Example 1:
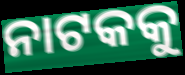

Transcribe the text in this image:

ନାଟକକୁ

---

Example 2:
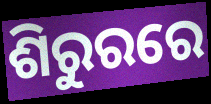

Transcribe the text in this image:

ଶିରୁରରେ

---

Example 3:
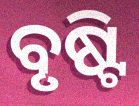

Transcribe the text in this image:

ବୃଷ୍ଟି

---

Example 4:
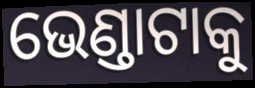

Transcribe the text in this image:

ଭେଣ୍ଡାଟାକୁ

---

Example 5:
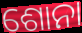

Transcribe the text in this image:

ଶୋନା